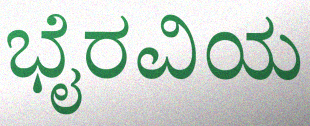
ಭೈರವಿಯ